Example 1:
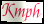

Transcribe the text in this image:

Kmph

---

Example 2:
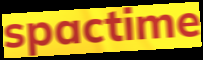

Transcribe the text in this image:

spactime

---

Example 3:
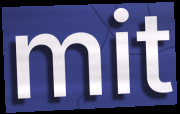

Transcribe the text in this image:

mit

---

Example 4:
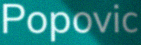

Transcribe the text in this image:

Popovic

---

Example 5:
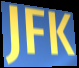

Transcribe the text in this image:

JFK